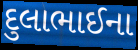
દુલાભાઈના